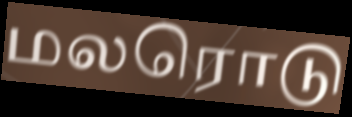
மலரொடு